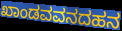
ಖಾಂಡವವನದಹನ